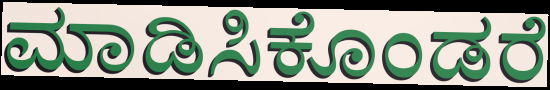
ಮಾಡಿಸಿಕೊಂಡರೆ